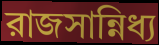
রাজসান্নিধ্য